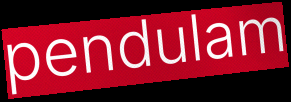
pendulam